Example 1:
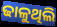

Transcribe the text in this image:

ଢାଳୁଥିଲି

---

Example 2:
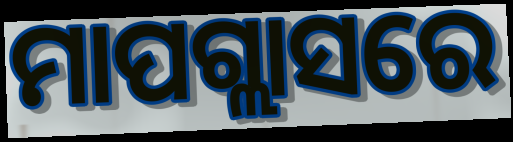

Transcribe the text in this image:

ମାପଗ୍ଲାସରେ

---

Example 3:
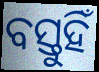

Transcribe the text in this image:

ବସ୍ତୁହିଁ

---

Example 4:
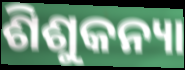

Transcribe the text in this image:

ଶିଶୁକନ୍ୟା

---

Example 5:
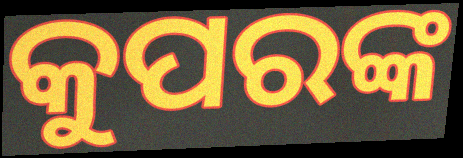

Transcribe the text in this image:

କୁପରଙ୍କ